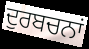
ਦੁਰਬਚਨਾਂ